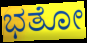
ಭತೋ